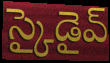
స్కైడైవ్